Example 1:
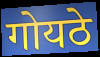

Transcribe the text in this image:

गोयठे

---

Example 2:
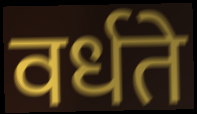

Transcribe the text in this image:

वर्धते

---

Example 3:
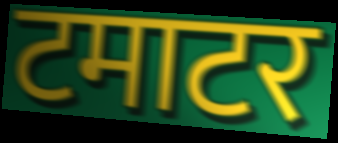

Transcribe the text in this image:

टमाटर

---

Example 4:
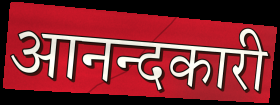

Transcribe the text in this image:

आनन्दकारी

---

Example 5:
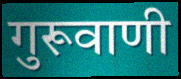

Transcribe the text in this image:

गुरूवाणी